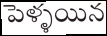
పెళ్ళయిన